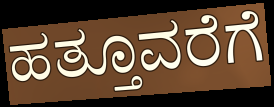
ಹತ್ತೂವರೆಗೆ